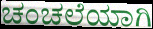
ಚಂಚಲೆಯಾಗಿ